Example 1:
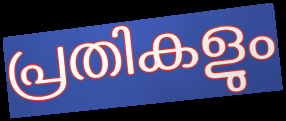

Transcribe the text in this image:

പ്രതികളും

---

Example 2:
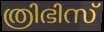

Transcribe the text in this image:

ത്രിഭിസ്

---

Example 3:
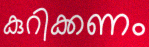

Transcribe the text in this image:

കുറിക്കണം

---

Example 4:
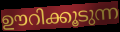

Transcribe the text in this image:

ഊറിക്കൂടുന്ന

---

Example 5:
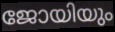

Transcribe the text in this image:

ജോയിയും